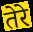
तेरे